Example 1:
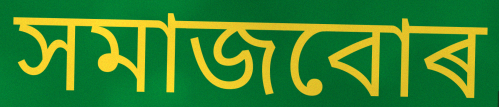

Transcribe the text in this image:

সমাজবোৰ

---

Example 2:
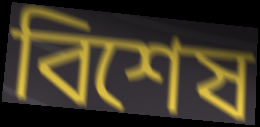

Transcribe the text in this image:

বিশেষ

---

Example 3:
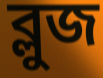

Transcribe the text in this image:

ব্লুজ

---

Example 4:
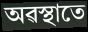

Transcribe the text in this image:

অৱস্থাতে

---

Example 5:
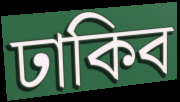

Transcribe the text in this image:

ঢাকিব